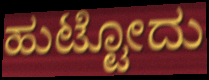
ಹುಟ್ಟೋದು